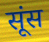
सूंस